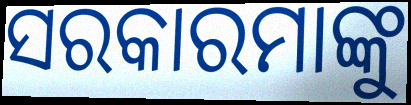
ସରକାରମାଙ୍କୁ